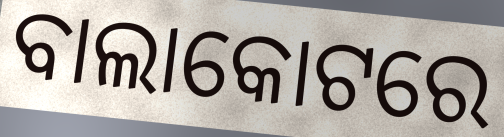
ବାଲାକୋଟରେ